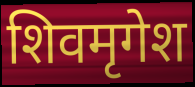
शिवमृगेश